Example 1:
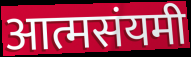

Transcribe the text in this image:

आत्मसंयमी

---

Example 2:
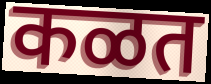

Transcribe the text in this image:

कळत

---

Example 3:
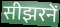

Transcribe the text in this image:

सीझरनें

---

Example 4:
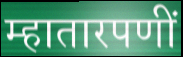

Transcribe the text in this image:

म्हातारपणीं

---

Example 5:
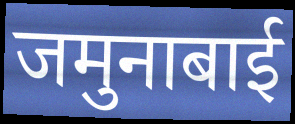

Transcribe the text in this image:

जमुनाबाई